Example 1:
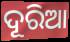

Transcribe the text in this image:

ଦୂରିଆ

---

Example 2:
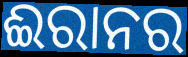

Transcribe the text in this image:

ଈରାନର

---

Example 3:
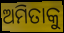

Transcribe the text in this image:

ଅମିତାକୁ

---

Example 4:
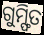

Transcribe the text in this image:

ଗୁମ୍ଫିତ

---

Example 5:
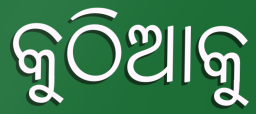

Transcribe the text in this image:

କୁଠିଆକୁ